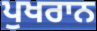
ਪੁਖਰਾਨ